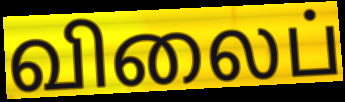
விலைப்